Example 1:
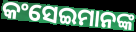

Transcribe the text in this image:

କଂସେଇମାନଙ୍କ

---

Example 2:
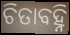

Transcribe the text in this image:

ଚିତାବହ୍ନି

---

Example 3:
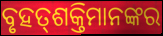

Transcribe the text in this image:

ବୃହତ୍‍ଶକ୍ତିମାନଙ୍କର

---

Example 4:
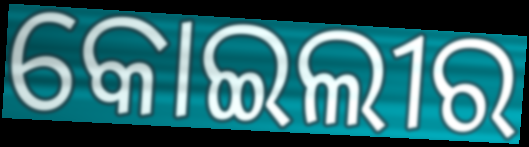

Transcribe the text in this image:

କୋଇଲୀର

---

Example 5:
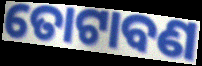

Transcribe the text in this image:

ତୋଟାବଣ